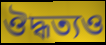
ঔদ্ধত্যও